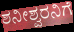
ಶನೀಶ್ವರನಿಗೆ